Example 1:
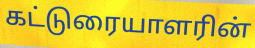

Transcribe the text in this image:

கட்டுரையாளரின்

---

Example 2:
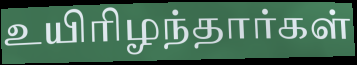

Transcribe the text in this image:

உயிரிழந்தார்கள்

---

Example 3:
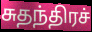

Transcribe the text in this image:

சுதந்திரச்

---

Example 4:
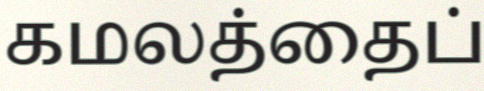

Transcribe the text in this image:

கமலத்தைப்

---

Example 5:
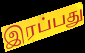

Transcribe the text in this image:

இரப்பது